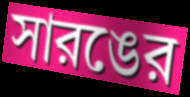
সারঙের